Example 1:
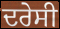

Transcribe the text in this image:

ਦਰੇਸੀ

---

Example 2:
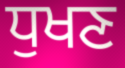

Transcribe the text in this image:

ਧੁਖਣ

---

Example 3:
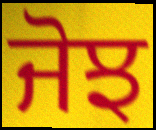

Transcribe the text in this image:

ਜੋਝ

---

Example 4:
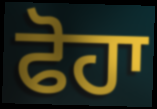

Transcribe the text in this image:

ਫੋਹਾ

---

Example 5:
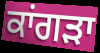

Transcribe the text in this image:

ਕਾਂਗੜਾ